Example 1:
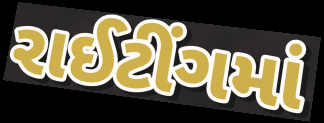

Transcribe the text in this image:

રાઈટીંગમાં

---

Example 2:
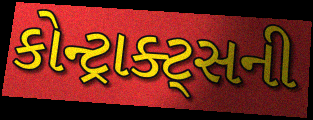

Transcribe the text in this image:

કોન્ટ્રાક્ટ્સની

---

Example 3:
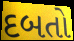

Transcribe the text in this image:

દબતો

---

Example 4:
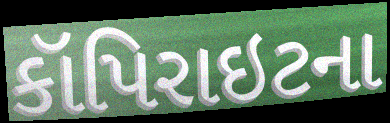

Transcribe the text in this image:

કૉપિરાઇટના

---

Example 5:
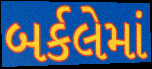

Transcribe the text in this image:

બર્કલેમાં